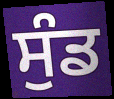
ਸੁੰਡ